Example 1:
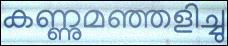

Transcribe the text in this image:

കണ്ണുമഞ്ഞളിച്ചു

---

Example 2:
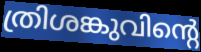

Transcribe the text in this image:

ത്രിശങ്കുവിന്റെ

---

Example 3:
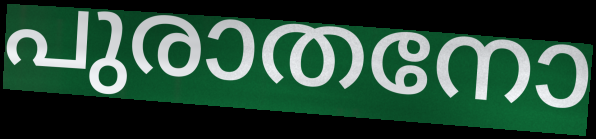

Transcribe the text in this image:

പുരാതനോ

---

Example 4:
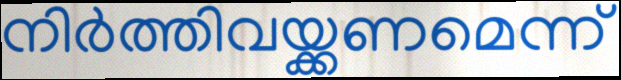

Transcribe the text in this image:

നിർത്തിവയ്ക്കണമെന്ന്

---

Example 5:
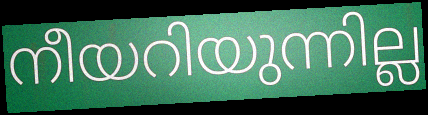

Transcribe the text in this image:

നീയറിയുന്നില്ല